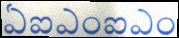
ఏఐఎంఐఎం